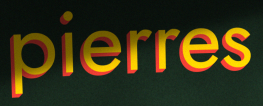
pierres